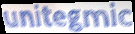
unitegmic